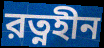
রত্নহীন